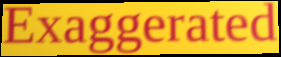
Exaggerated